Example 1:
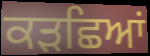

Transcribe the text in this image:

ਕੜਛਿਆਂ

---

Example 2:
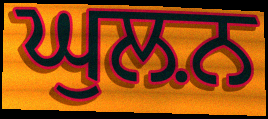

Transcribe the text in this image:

ਘੁਲ਼ਨ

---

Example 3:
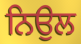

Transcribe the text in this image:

ਨਿਉਲ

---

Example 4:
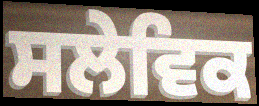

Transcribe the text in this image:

ਸਲੇਵਿਕ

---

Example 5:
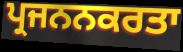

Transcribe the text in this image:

ਪ੍ਰਜਨਨਕਰਤਾ